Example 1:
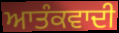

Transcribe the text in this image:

ਆਤੰਕਵਾਦੀ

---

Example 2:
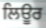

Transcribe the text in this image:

ਲਿਊਰ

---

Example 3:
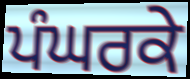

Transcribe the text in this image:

ਪੰਘਰਕੇ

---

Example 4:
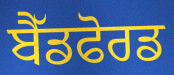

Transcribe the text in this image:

ਬੈੱਡਫੋਰਡ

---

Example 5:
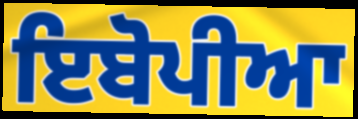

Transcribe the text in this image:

ਇਬੋਪੀਆ